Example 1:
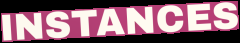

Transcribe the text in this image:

INSTANCES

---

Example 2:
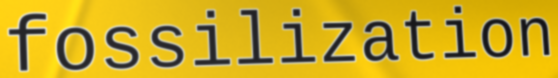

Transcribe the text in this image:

fossilization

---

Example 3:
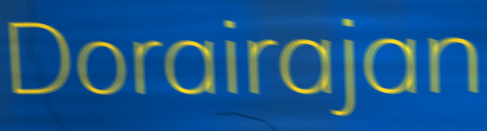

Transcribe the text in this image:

Dorairajan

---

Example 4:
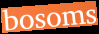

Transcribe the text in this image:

bosoms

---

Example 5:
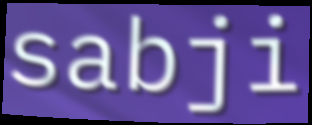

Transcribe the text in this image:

sabji